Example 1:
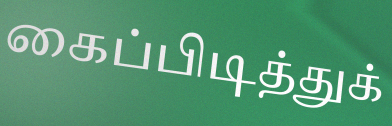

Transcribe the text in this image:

கைப்பிடித்துக்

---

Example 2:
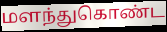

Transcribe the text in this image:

மளந்துகொண்ட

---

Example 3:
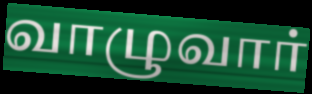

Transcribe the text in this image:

வாழுவார்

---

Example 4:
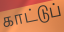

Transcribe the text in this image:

காட்டுப்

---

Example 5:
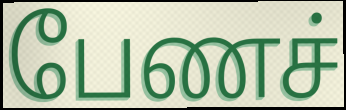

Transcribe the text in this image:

பேணச்